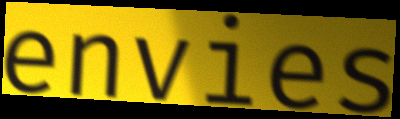
envies